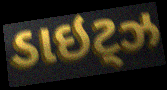
ડાઇટ્ઝ